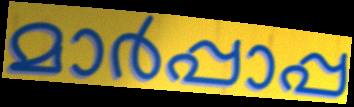
മാർപ്പാപ്പ